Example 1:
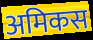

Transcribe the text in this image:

अमिकस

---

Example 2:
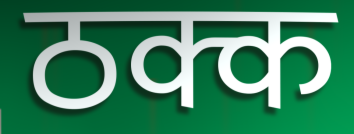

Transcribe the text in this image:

ठक्क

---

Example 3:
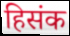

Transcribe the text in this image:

हिसंक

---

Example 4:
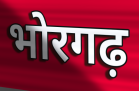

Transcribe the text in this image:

भोरगढ़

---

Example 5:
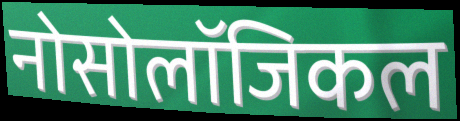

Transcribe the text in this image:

नोसोलॉजिकल